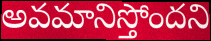
అవమానిస్తోందని